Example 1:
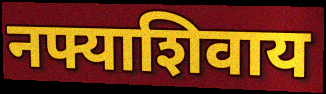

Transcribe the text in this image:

नफ्याशिवाय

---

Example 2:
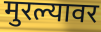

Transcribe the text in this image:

मुरल्यावर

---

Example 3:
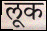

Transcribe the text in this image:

लूक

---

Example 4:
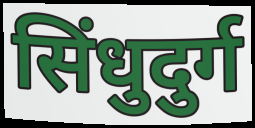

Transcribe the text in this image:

सिंधुदुर्ग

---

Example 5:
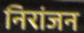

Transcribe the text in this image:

निरांजन